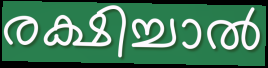
രക്ഷിച്ചാൽ